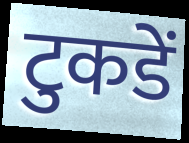
टुकडें